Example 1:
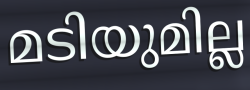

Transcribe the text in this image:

മടിയുമില്ല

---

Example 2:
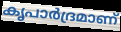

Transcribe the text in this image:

കൃപാർദ്രമാണ്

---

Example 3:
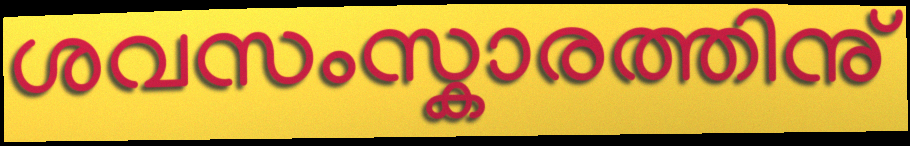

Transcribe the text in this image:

ശവസംസ്കാരത്തിനു്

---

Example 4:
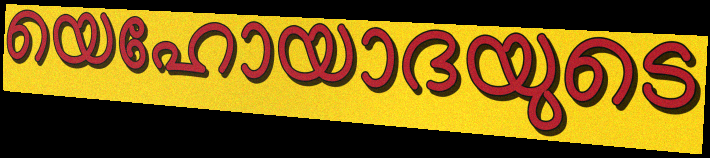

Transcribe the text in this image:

യെഹോയാദയുടെ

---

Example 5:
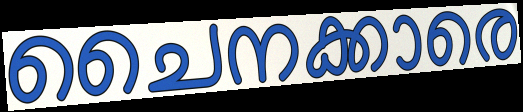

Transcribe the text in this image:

ചൈനക്കാരെ